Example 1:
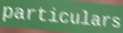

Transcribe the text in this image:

particulars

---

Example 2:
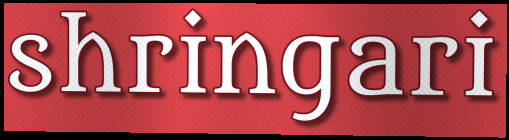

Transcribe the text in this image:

shringari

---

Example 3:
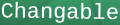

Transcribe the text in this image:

Changable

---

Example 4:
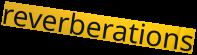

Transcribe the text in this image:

reverberations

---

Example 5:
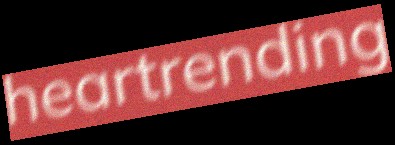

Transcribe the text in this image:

heartrending